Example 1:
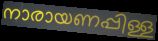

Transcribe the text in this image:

നാരായണപ്പിള്ള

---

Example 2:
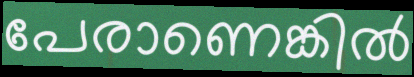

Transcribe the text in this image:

പേരാണെങ്കിൽ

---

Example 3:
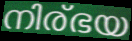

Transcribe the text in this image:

നിര്ഭയ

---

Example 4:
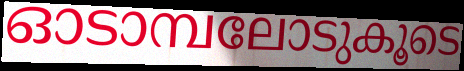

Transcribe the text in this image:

ഓടാമ്പലോടുകൂടെ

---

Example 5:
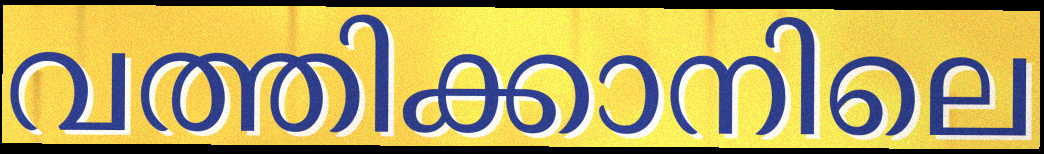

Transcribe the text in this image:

വത്തിക്കാനിലെ